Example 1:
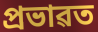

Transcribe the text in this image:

প্ৰভাৱত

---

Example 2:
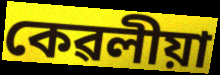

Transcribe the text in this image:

কেৱলীয়া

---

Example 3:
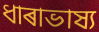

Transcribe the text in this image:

ধাৰাভাষ্য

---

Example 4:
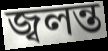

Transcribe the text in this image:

জ্বলন্ত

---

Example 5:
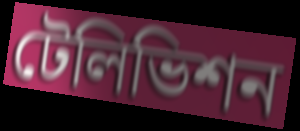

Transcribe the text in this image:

টেলিভিশন